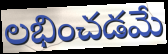
లభించడమే